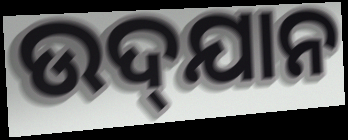
ଉଦ୍‌ଯାନ